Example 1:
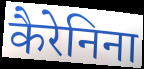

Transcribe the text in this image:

कैरेनिना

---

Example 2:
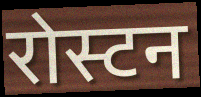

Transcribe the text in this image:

रोस्टन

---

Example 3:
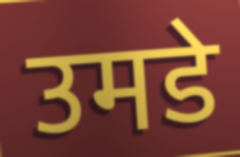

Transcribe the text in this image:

उमडे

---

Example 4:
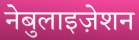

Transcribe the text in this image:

नेबुलाइज़ेशन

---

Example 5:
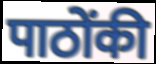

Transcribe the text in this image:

पाठोंकी